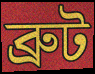
ব্রুট